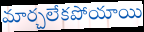
మార్చలేకపోయాయి